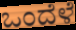
ಒಂದೆಳೆ